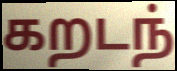
கறடந்